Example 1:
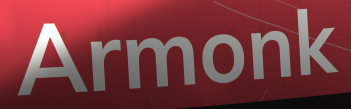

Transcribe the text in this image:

Armonk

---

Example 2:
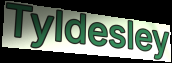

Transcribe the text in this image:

Tyldesley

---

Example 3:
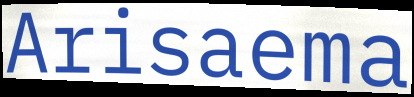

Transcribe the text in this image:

Arisaema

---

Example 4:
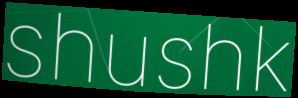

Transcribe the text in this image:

shushk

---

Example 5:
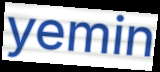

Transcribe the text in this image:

yemin